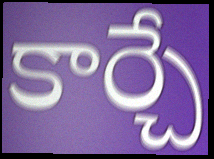
కార్చే